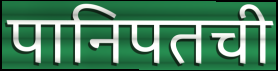
पानिपतची